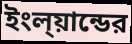
ইংল্য়ান্ডের